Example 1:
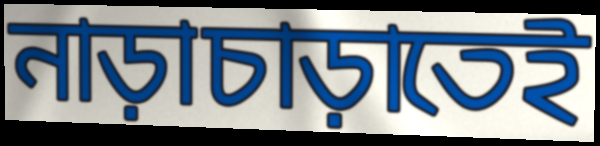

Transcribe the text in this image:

নাড়াচাড়াতেই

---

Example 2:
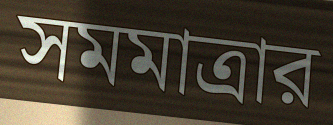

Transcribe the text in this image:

সমমাত্রার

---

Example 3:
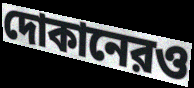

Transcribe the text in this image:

দোকানেরও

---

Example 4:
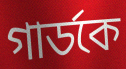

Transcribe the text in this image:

গার্ডকে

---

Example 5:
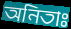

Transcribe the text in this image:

অনিতাঃ